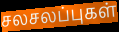
சலசலப்புகள்